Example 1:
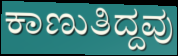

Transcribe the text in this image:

ಕಾಣುತಿದ್ದವು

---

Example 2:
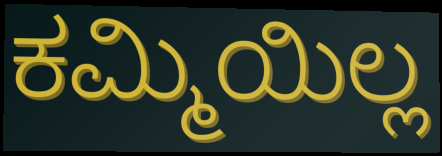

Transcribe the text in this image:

ಕಮ್ಮಿಯಿಲ್ಲ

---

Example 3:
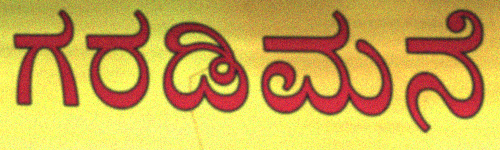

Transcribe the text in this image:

ಗರಡಿಮನೆ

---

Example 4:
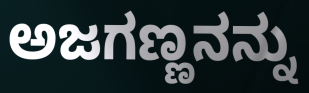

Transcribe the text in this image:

ಅಜಗಣ್ಣನನ್ನು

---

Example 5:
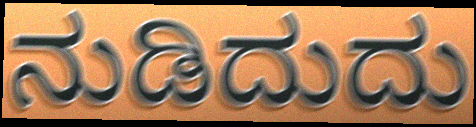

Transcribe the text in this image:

ನುಡಿದುದು